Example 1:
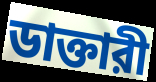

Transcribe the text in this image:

ডাক্তারী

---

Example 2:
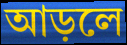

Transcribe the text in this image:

আড়লে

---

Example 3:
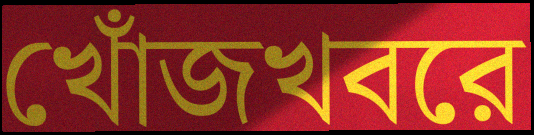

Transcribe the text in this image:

খোঁজখবরে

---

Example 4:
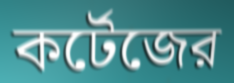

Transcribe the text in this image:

কর্টেজের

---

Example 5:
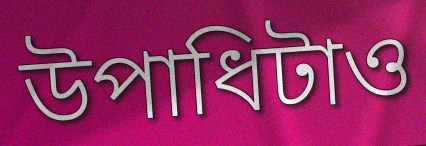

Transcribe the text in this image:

উপাধিটাও